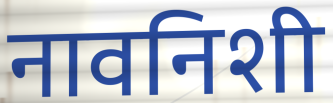
नावनिशी